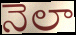
నెలా